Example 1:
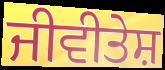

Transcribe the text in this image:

ਜੀਵੀਤੇਸ਼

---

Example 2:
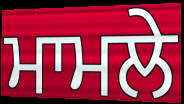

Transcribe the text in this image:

ਮਾਮਲੇ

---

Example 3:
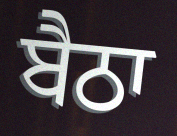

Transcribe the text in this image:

ਬੈਠਾ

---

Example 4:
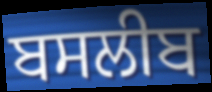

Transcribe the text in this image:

ਬਸਲੀਬ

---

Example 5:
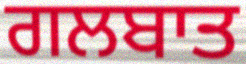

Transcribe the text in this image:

ਗਲਬਾਤ